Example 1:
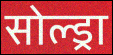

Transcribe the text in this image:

सोल्ड्रा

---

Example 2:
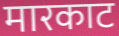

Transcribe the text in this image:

मारकाट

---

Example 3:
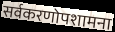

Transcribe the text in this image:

सर्वकरणोपशामना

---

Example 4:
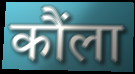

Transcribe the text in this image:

कौंला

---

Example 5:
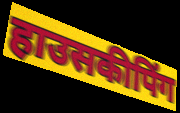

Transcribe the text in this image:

हाउसकीपिंग